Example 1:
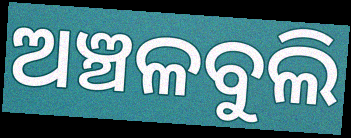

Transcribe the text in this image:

ଅଞ୍ଚଳବୁଲି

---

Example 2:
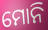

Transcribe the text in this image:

ମୋନି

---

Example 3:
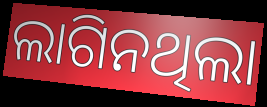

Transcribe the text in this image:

ଲାଗିନଥିଲା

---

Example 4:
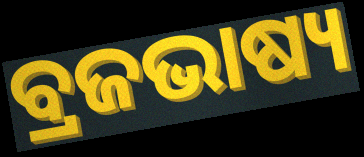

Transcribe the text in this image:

ବ୍ରଜଭାଷ୍ୟ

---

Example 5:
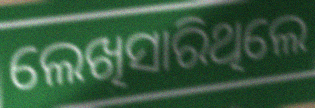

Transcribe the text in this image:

ଲେଖିସାରିଥିଲେ